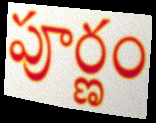
పూర్ణం